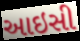
આઇસી